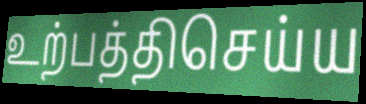
உற்பத்திசெய்ய